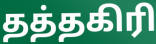
தத்தகிரி